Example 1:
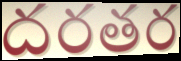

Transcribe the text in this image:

దరతర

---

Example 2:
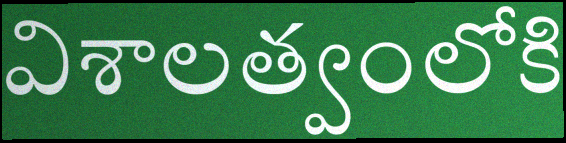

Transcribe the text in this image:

విశాలత్వంలోకి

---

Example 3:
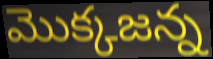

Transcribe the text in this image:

మొక్కజన్న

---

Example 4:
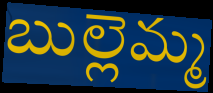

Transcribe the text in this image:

బుల్లెమ్మ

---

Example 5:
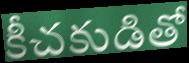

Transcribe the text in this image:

కీచకుడితో